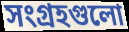
সংগ্রহগুলো